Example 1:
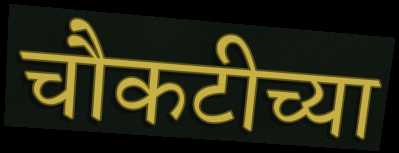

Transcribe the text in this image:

चौकटीच्या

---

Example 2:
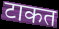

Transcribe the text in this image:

टाकत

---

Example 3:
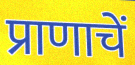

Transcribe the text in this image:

प्राणाचें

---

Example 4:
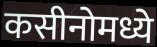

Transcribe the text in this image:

कसीनोमध्ये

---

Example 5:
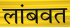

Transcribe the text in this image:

लांबवत